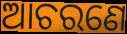
ଆଚରଣେ